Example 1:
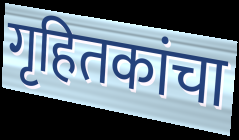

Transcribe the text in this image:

गृहितकांचा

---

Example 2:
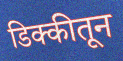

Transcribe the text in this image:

डिक्कीतून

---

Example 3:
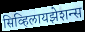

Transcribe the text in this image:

सिव्हिलायझेशन्स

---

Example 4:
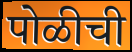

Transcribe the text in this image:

पोळीची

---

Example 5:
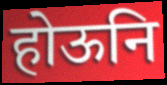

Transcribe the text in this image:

होऊनि